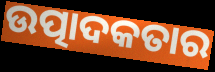
ଉତ୍ପାଦକତାର